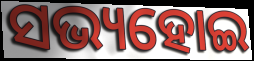
ସଭ୍ୟହୋଇ